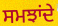
ਸਮਝਾਂਦੇ